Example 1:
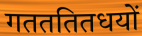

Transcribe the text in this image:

गतततितधयों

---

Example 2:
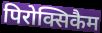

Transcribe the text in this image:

पिरोक्सिकैम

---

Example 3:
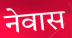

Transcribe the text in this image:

नेवास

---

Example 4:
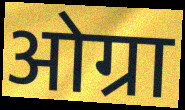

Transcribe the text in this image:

ओग्रा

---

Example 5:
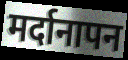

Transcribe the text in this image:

मर्दानापन